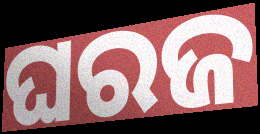
ଘରଜ